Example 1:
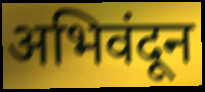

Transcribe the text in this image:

अभिवंदून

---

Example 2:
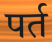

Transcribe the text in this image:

पर्त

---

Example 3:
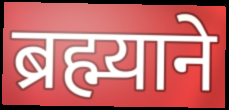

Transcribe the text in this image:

ब्रह्म्याने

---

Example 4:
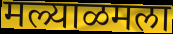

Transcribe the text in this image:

मल्याळमला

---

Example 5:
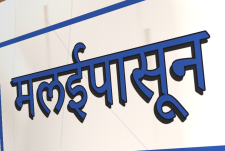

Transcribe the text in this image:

मलईपासून